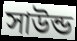
সাউন্ড